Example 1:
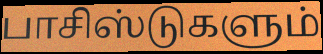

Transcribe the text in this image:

பாசிஸ்டுகளும்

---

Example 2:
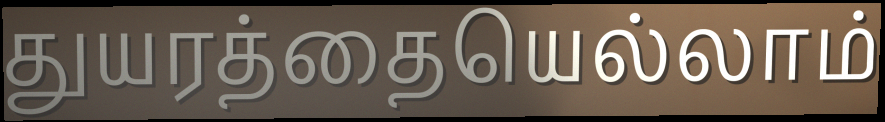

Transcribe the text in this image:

துயரத்தையெல்லாம்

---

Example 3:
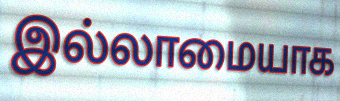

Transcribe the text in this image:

இல்லாமையாக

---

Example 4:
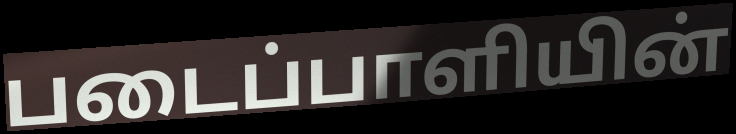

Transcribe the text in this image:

படைப்பாளியின்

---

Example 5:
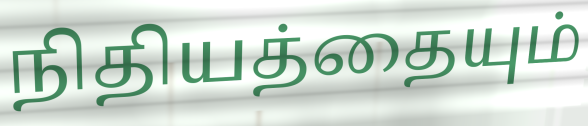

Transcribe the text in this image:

நிதியத்தையும்